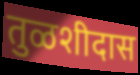
तुळशीदास